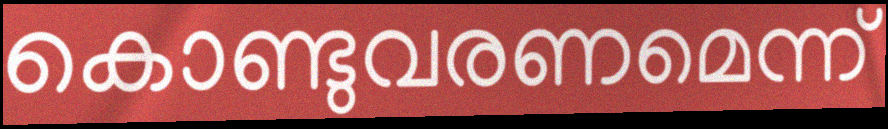
കൊണ്ടുവരണമെന്ന്